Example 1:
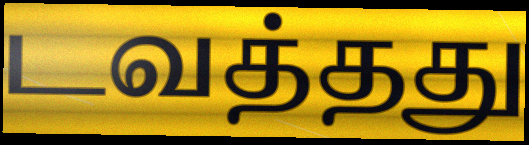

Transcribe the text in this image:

டவத்தது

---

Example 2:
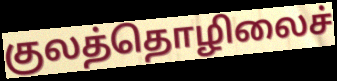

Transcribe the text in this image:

குலத்தொழிலைச்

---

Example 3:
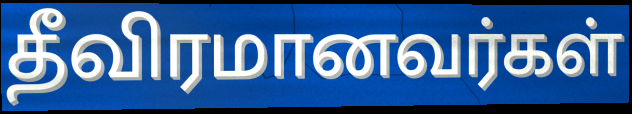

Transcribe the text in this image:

தீவிரமானவர்கள்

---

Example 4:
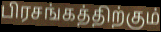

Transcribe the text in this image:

பிரசங்கத்திற்கும்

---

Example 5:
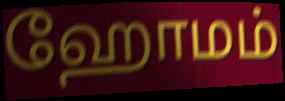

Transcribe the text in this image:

ஹோமம்